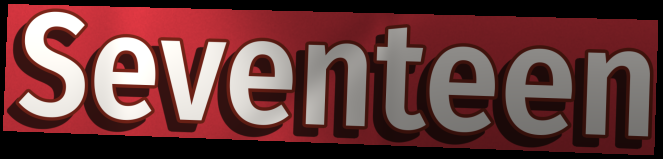
Seventeen